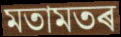
মতামতৰ